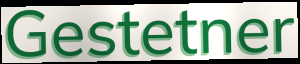
Gestetner